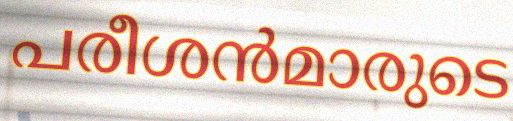
പരീശൻമാരുടെ